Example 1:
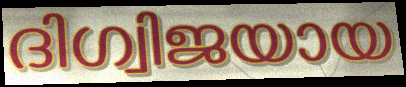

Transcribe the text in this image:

ദിഗ്വിജയായ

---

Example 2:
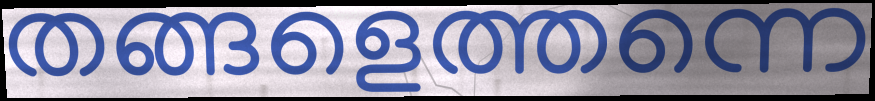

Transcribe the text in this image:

തങ്ങളെത്തന്നെ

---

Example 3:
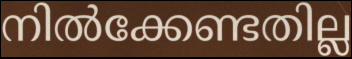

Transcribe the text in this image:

നിൽക്കേണ്ടതില്ല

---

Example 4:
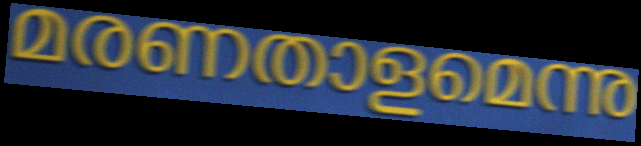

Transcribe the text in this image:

മരണതാളമെന്നു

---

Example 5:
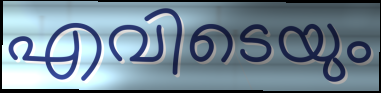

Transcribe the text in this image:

എവിടെയും